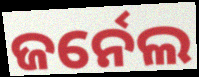
ଜର୍ନେଲ